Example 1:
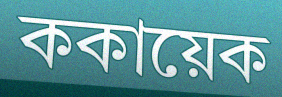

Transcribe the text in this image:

ককায়েক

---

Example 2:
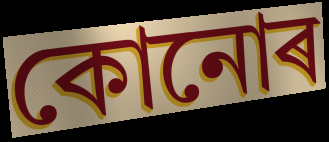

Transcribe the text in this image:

কোনোৰ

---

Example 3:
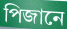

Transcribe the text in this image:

পিজানে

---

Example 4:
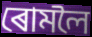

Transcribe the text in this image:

ৰোমলৈ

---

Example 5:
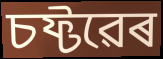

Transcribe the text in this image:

চফ্টৱেৰ